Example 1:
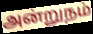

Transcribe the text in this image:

அன்றுநம்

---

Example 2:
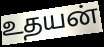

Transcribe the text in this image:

உதயன்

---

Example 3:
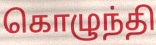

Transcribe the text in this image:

கொழுந்தி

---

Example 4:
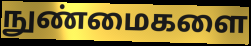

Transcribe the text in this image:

நுண்மைகளை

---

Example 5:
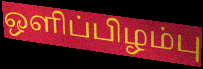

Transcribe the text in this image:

ஒளிப்பிழம்பு